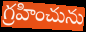
గ్రహించును